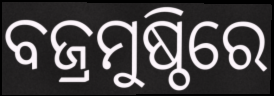
ବଜ୍ରମୁଷ୍ଠିରେ